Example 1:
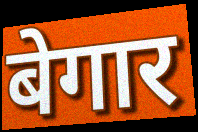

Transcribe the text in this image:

बेगार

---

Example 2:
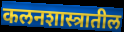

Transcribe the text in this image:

कलनशास्त्रातील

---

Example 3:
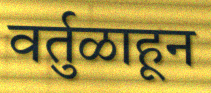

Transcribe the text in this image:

वर्तुळाहून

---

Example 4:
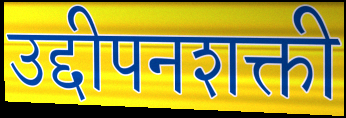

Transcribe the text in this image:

उद्दीपनशक्ती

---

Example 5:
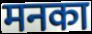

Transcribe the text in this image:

मनका